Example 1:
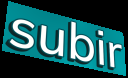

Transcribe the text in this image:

subir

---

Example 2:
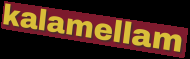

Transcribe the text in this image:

kalamellam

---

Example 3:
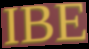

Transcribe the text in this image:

IBE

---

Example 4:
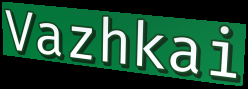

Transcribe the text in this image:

Vazhkai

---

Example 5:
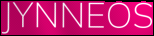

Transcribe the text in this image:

JYNNEOS